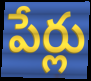
పేర్లు